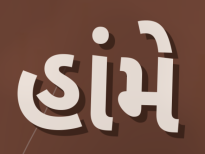
હાંમે